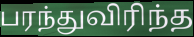
பரந்துவிரிந்த